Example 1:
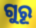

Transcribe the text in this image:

ଗୁରୂ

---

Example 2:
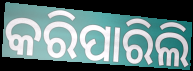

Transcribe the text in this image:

କରିପାରିଲି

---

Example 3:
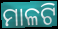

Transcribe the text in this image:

ମାଳଟି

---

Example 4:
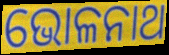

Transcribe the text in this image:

ଭୋଳନାଥ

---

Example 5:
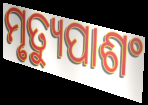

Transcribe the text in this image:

ମୃତ୍ୟୁପାଶଂ